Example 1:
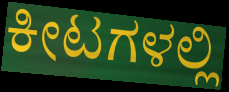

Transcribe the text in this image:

ಕೀಟಗಳಲ್ಲಿ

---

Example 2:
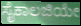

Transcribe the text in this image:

ಸೈಕಾಲಜಿಯೇ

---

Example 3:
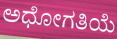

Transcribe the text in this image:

ಅಧೋಗತಿಯೆ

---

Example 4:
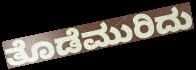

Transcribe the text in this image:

ತೊಡೆಮುರಿದು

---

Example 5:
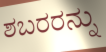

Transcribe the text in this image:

ಶಬರರನ್ನು